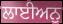
ਲਾਈਅਨੁ